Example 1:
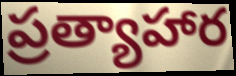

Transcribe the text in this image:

ప్రత్యాహార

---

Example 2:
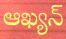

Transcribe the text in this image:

ఆఖ్యన్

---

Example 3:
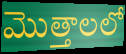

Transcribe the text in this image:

మొత్తాలలో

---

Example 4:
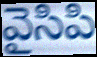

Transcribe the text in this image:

వైసిపి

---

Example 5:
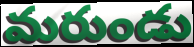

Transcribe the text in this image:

మరుండు